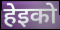
हेइको